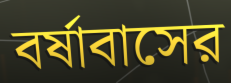
বর্ষাবাসের